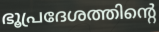
ഭൂപ്രദേശത്തിന്റെ